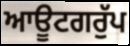
ਆਊਟਗਰੁੱਪ